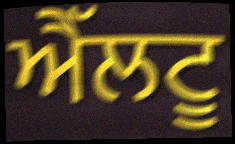
ਐੱਲਟੂ